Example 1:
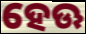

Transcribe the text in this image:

ହେଊ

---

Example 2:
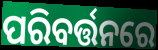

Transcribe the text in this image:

ପରିବର୍ତ୍ତନରେ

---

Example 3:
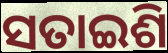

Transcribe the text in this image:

ସତାଇଶି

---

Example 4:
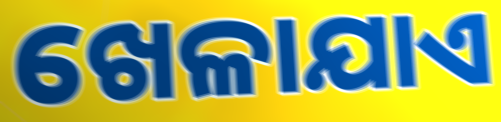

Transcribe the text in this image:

ଖେଳାଯାଏ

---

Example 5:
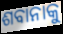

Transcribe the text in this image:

ଶବାନାକୁ